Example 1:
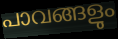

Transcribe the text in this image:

പാവങ്ങളും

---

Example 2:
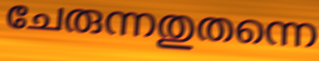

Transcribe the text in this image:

ചേരുന്നതുതന്നെ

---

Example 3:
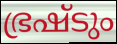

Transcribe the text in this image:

ഭ്രഷ്ടും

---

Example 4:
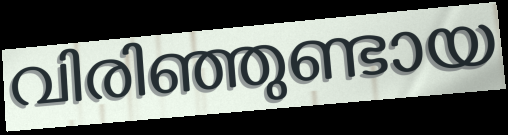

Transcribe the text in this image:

വിരിഞ്ഞുണ്ടായ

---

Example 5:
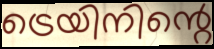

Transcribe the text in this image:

ട്രെയിനിന്റെ